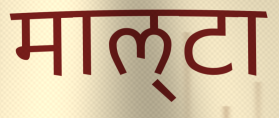
माल्टा